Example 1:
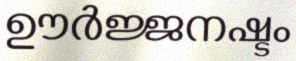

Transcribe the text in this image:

ഊർജ്ജനഷ്ടം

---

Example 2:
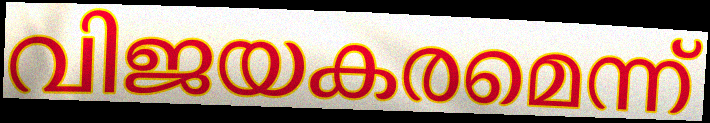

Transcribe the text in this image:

വിജയകരമെന്ന്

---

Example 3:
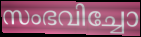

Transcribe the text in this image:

സംഭവിച്ചോ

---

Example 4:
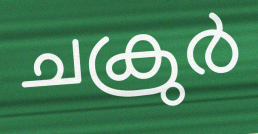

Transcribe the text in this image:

ചക്രുർ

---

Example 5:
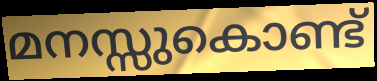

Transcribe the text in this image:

മനസ്സുകൊണ്ട്